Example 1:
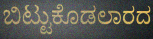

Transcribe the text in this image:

ಬಿಟ್ಟುಕೊಡಲಾರದ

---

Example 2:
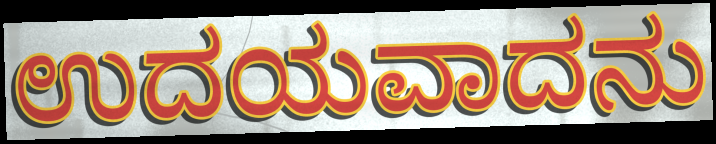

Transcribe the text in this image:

ಉದಯವಾದನು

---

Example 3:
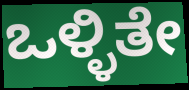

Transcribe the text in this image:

ಒಳ್ಳಿತೇ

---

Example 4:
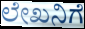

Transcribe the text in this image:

ಲೇಖನಿಗೆ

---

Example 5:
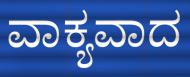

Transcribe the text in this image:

ವಾಕ್ಯವಾದ